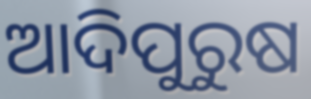
ଆଦିପୁରୁଷ